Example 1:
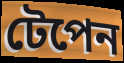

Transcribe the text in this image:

টেপেন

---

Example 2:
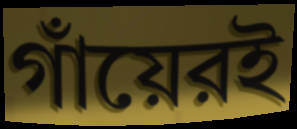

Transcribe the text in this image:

গাঁয়েরই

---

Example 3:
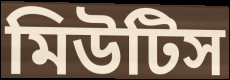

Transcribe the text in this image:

মিউটিস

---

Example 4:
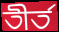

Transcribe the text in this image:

তীর্ত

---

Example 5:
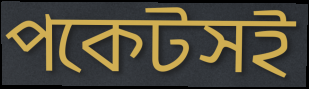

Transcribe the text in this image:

পকেটসই